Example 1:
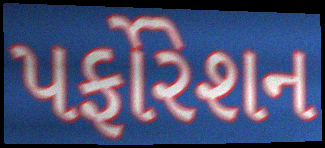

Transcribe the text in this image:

પર્ફોરેશન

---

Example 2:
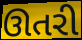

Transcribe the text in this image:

ઊતરી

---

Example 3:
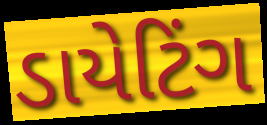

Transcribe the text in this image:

ડાયેટિંગ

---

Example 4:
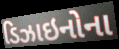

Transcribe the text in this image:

ડિઝાઇનોના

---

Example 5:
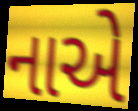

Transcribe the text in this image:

નાએ